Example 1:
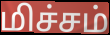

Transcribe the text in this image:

மிச்சம்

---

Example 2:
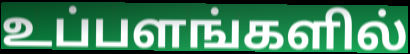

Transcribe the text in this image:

உப்பளங்களில்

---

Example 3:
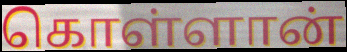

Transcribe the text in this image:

கொள்ளான்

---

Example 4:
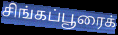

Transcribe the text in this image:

சிங்கப்பூரைக்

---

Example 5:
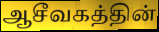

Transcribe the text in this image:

ஆசீவகத்தின்